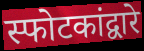
स्फोटकांद्वारे